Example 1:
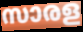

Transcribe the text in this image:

സാരള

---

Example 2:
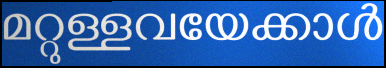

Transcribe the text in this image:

മറ്റുള്ളവയേക്കാൾ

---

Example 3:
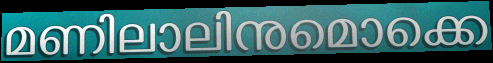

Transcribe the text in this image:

മണിലാലിനുമൊക്കെ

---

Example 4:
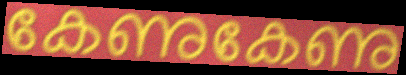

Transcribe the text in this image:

കേണുകേണു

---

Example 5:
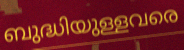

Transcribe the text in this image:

ബുദ്ധിയുള്ളവരെ